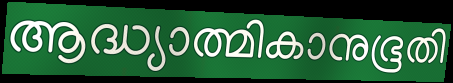
ആദ്ധ്യാത്മികാനുഭൂതി